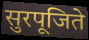
सुरपूजिते